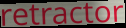
retractor